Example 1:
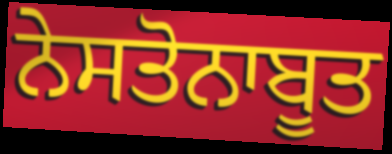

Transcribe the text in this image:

ਨੇਸਤੋਨਾਬੂਤ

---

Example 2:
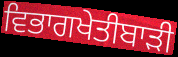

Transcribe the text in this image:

ਵਿਭਾਗਖੇਤੀਬਾੜੀ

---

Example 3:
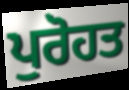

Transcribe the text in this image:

ਪੁਰੋਹਤ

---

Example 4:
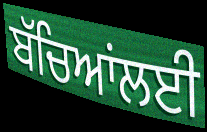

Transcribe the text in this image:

ਬੱਚਿਆਂਲਈ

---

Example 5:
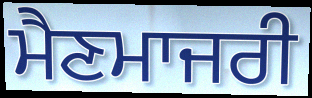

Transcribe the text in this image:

ਮੈਣਮਾਜਰੀ